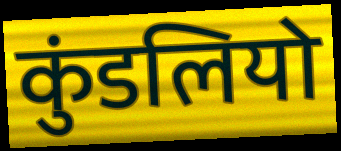
कुंडलियो